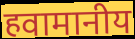
हवामानीय